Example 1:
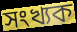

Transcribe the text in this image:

সংখ্যক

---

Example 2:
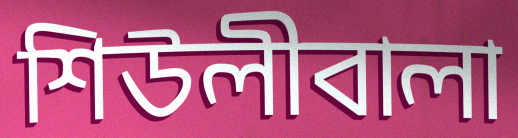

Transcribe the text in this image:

শিউলীবালা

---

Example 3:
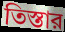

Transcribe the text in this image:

তিস্তার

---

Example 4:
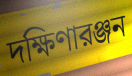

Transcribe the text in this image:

দক্ষিণারঞ্জন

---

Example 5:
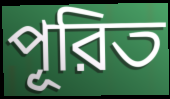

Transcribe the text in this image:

পূরিত